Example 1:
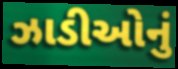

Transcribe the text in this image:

ઝાડીઓનું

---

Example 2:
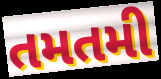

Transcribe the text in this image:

તમતમી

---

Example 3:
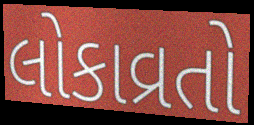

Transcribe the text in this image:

લોકાવ્રતો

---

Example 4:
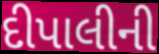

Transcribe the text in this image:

દીપાલીની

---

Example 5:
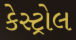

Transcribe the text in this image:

કેસ્ટ્રોલ